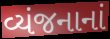
વ્યંજનાનાં